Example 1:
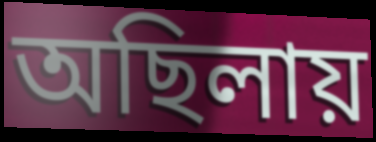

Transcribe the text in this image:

অছিলায়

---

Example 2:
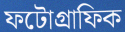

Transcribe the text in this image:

ফটোগ্রাফিক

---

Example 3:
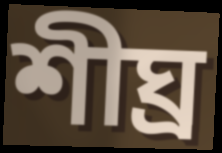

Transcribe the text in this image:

শীঘ্র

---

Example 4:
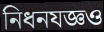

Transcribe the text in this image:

নিধনযজ্ঞও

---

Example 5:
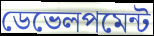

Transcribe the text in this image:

ডেভেলপমেন্ট